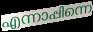
എന്നാപ്പിന്നെ